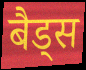
बैड्स